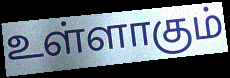
உள்ளாகும்